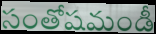
సంతోషమండీ